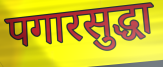
पगारसुद्धा